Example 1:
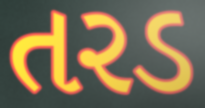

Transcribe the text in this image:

તરડ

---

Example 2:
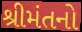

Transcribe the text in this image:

શ્રીમંતનો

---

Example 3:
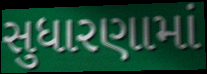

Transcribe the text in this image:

સુધારણામાં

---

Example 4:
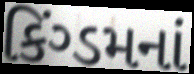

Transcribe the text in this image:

કિંગ્ડમનાં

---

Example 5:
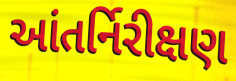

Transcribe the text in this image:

આંતર્નિરીક્ષણ